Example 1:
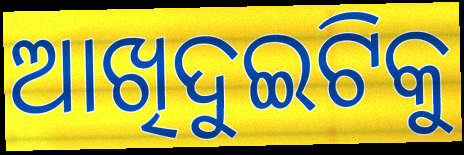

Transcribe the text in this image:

ଆଖିଦୁଇଟିକୁ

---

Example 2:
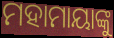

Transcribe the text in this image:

ମହାମାୟାଙ୍କୁ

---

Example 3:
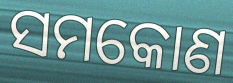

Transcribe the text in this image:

ସମକୋଣ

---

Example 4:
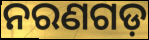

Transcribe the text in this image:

ନରଣଗଡ଼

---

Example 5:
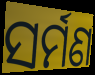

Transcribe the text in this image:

ସର୍ମଣ